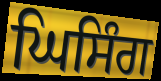
ਘਿਸਿੰਗ